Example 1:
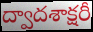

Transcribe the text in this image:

ద్వాదశాక్షరీ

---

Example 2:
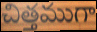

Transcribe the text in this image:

చిత్తముగా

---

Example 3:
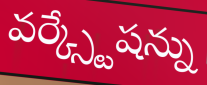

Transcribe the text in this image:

వర్క్స్టేషన్ను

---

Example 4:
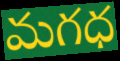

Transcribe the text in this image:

మగధ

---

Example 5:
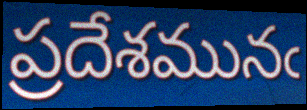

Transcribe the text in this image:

ప్రదేశమునఁ